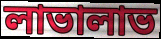
লাভালাভ